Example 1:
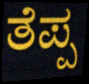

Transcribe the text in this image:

ತೆಪ್ಪ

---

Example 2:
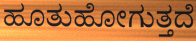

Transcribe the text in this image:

ಹೂತುಹೋಗುತ್ತದೆ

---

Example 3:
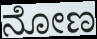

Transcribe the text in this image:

ನೋಣ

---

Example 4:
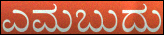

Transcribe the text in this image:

ಎಮಬುದು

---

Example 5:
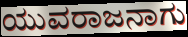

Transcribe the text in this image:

ಯುವರಾಜನಾಗು